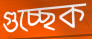
গুচ্ছেক